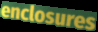
enclosures